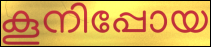
കൂനിപ്പോയ